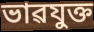
ভাৱযুক্ত